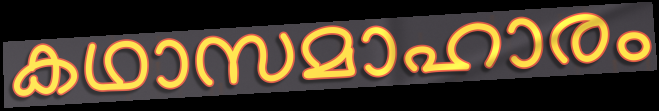
കഥാസമാഹാരം